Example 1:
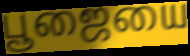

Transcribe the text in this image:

பூஜையை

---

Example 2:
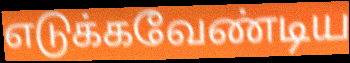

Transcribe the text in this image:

எடுக்கவேண்டிய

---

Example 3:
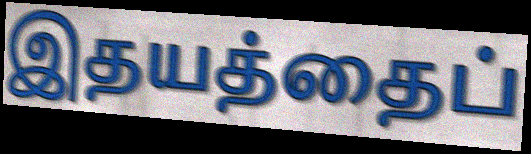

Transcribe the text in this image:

இதயத்தைப்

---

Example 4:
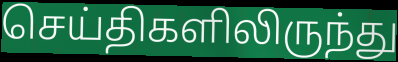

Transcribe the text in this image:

செய்திகளிலிருந்து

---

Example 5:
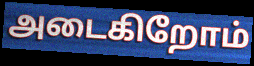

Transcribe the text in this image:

அடைகிறோம்